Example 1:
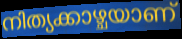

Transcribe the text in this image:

നിത്യക്കാഴ്ചയാണ്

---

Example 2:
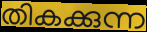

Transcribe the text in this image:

തികക്കുന്ന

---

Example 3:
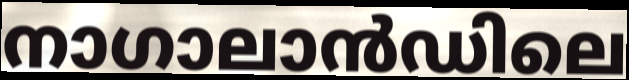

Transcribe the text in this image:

നാഗാലാൻഡിലെ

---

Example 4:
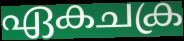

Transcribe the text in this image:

ഏകചക്ര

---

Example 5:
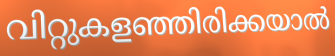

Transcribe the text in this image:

വിറ്റുകളഞ്ഞിരിക്കയാൽ